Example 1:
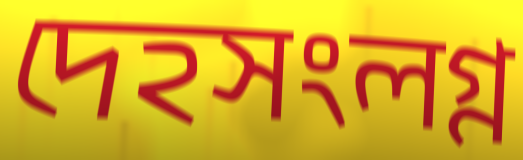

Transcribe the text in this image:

দেহসংলগ্ন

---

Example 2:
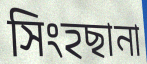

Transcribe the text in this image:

সিংহছানা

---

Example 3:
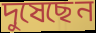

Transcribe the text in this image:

দুষেছেন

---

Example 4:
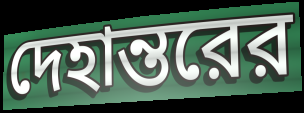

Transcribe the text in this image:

দেহান্তরের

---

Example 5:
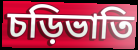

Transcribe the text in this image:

চড়িভাতি